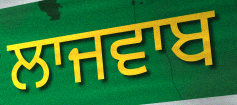
ਲਾਜਵਾਬ